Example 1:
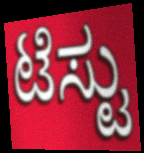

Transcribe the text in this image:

ಟೆಸ್ಟು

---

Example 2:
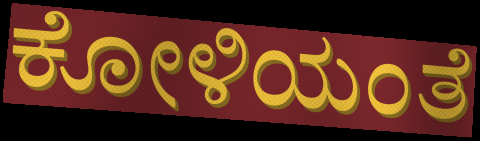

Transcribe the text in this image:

ಕೋಳಿಯಂತೆ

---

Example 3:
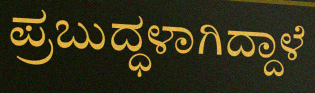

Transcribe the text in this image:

ಪ್ರಬುದ್ಧಳಾಗಿದ್ದಾಳೆ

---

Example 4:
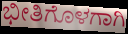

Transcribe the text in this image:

ಭೀತಿಗೊಳಗಾಗಿ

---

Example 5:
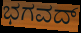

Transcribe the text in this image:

ಭಗವದ್